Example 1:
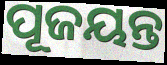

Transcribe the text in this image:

ପୂଜୟନ୍ତ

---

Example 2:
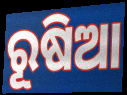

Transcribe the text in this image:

ରୂଷିଆ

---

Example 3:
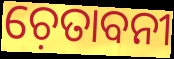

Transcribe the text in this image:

ଚ଼େତାବନୀ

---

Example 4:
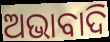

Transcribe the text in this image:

ଅଭାବାଦି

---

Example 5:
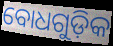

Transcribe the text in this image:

ବୋଧଗୁଡ଼ିକ